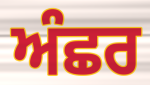
ਅੰਛਰ